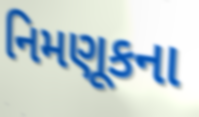
નિમણૂકના